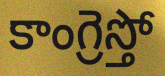
కాంగ్రెస్తో